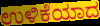
ಉಳಿಕೆಯಾದ